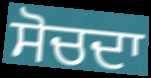
ਸੋਚਦਾ